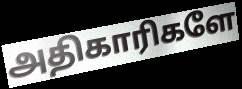
அதிகாரிகளே